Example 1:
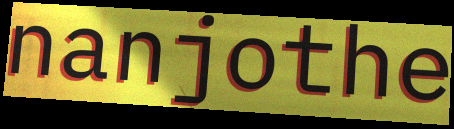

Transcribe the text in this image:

nanjothe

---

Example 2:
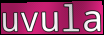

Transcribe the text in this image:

uvula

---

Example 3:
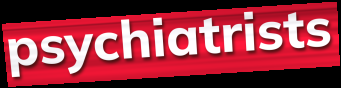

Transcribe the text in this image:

psychiatrists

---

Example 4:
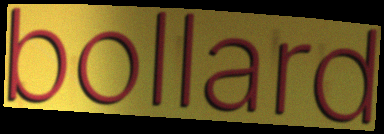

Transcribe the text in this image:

bollard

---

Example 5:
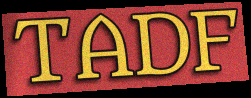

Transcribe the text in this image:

TADF